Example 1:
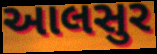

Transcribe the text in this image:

આલસુર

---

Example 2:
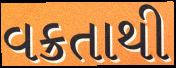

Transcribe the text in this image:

વક્રતાથી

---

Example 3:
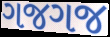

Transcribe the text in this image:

ગજગજ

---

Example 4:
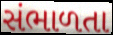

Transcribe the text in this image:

સંભાળતા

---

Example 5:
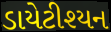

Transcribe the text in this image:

ડાયેટીશ્યન